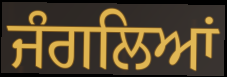
ਜੰਗਲਿਆਂ